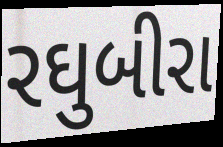
રઘુબીરા